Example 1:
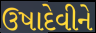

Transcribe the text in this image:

ઉષાદેવીને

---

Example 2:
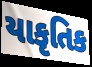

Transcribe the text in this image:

યાકૃતિક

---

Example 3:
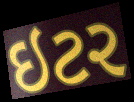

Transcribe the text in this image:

ઇટર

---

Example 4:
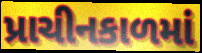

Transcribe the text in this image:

પ્રાચીનકાળમાં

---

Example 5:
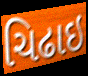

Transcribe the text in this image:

ચિઢાઇ